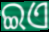
ଇଏ